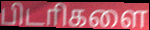
பிடரிகளை